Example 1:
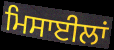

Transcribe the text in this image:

ਮਿਸਾਈਲਾਂ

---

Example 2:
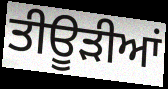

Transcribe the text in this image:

ਤੀਊੜੀਆਂ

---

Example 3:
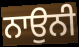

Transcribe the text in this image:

ਨਾਉਨੀ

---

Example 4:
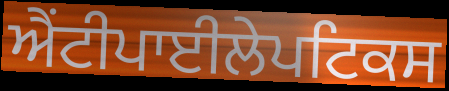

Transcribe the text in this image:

ਐਂਟੀਪਾਈਲੇਪਟਿਕਸ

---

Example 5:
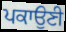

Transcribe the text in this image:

ਪਕਾਉਣੀ